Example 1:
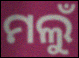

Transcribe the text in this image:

ମଲୁଁ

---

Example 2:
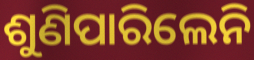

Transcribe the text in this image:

ଶୁଣିପାରିଲେନି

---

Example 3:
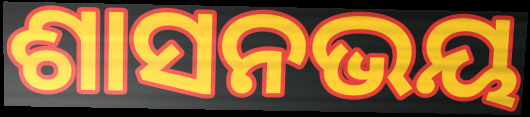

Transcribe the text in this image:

ଶାସନଭୟ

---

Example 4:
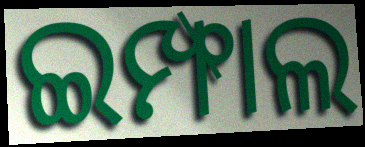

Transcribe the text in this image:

ଇମ୍ଫାଲ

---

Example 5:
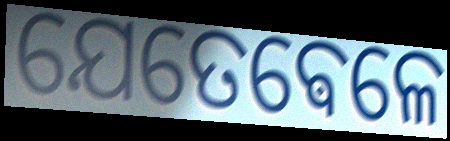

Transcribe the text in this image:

ଯେତେଵେଳେ